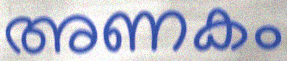
അണകം